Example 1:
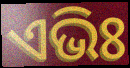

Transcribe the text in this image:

ଏଭିଃ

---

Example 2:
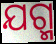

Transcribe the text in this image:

ଯଗ୍ମ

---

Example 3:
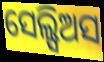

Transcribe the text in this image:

ସେଲ୍ସିଅସ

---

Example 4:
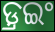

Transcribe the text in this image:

ଡ଼୍ରଇଂ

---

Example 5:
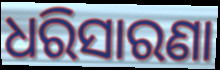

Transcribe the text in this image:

ଧରିସାରଣା